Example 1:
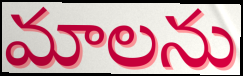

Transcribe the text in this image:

మాలను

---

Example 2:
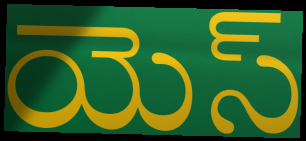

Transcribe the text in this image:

యెస్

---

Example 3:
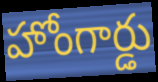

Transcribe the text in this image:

హోంగార్డు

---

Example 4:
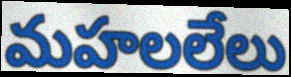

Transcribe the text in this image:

మహలలేలు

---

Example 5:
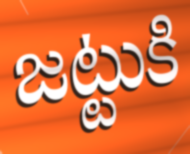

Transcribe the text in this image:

జట్టుకి